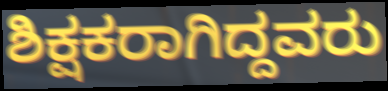
ಶಿಕ್ಷಕರಾಗಿದ್ದವರು